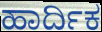
ಹಾರ್ದಿಕ